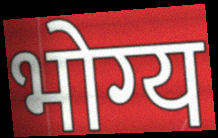
भोग्य